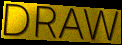
DRAW